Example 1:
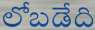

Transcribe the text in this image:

లోబడేది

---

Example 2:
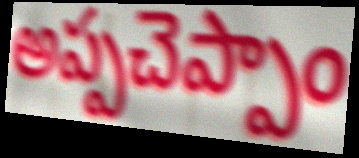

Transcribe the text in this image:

అప్పచెప్పాం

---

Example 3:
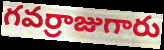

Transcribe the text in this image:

గవర్రాజుగారు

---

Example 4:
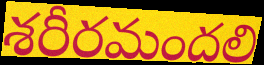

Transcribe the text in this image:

శరీరమందలి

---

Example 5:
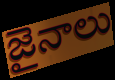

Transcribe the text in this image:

జైనాలు